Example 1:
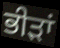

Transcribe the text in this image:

ਭੀੜਾਂ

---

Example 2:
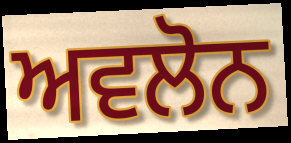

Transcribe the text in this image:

ਅਵਲੋਨ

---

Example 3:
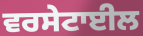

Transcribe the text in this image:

ਵਰਸੇਟਾਈਲ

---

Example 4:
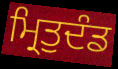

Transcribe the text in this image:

ਮ੍ਰਿਤੁਦੰਡ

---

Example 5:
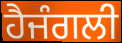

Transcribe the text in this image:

ਹੈਜੰਗਲੀ